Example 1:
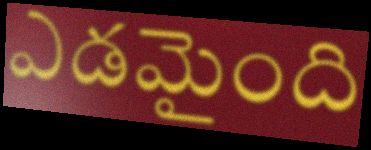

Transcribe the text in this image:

ఎడమైంది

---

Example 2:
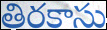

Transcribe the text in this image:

తిరకాసు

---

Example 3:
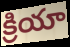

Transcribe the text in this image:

క్రియా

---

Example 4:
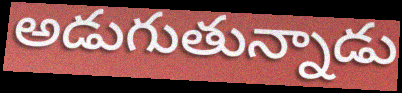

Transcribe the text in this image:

అడుగుతున్నాడు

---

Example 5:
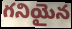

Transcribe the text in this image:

గనియైన